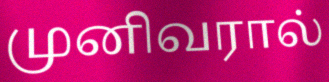
முனிவரால்